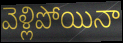
వెళ్లిపోయినా